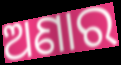
ଅଣାର